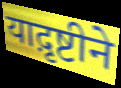
याद़ृष्टीने